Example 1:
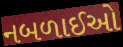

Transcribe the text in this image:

નબળાઈઓ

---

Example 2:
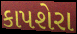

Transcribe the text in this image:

કાપશેરા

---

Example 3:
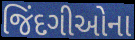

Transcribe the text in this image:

જિંદગીઓના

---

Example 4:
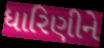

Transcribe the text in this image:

ધારિણીને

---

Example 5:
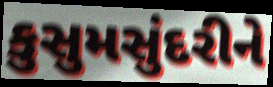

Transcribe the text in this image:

કુસુમસુંદરીને